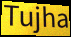
Tujha